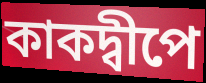
কাকদ্বীপে